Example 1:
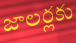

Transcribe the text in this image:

జాలర్లకు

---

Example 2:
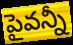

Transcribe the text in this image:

పైవన్నీ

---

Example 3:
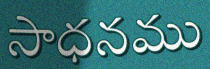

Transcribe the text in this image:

సాధనము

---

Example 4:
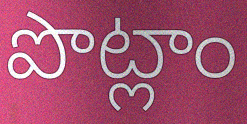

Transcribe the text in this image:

పొట్లాం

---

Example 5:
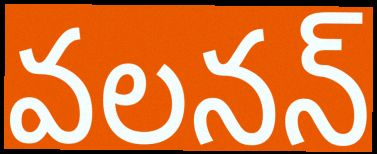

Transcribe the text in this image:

వలనన్